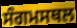
ਸੰਗਮਸਥਲ